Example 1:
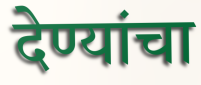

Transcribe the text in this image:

देण्यांचा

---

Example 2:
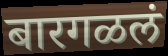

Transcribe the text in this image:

बारगळलं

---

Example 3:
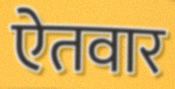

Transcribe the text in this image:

ऐतवार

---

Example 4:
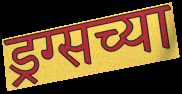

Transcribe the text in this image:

ड्रग्सच्या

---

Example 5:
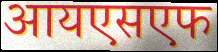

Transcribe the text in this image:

आयएसएफ